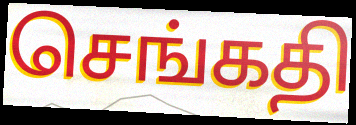
செங்கதி